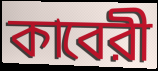
কাবেরী